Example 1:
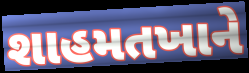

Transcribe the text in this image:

શાહમતખાને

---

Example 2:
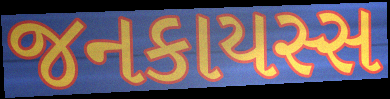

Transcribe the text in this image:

જનકાયસ્સ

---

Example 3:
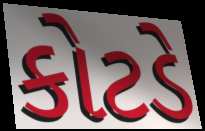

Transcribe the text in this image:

કોટડે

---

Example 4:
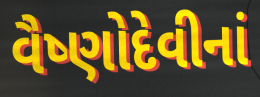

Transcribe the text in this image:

વૈષ્ણોદેવીનાં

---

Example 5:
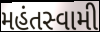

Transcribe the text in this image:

મહંતસ્વામી